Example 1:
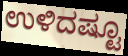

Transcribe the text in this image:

ಉಳಿದಷ್ಟೂ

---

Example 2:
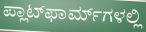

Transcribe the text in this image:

ಪ್ಲಾಟ್‌ಫಾರ್ಮ್‌ಗಳಲ್ಲಿ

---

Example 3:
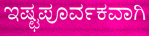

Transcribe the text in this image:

ಇಷ್ಟಪೂರ್ವಕವಾಗಿ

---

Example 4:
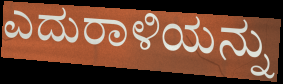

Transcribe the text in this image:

ಎದುರಾಳಿಯನ್ನು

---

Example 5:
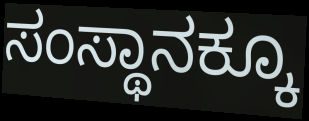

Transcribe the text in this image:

ಸಂಸ್ಥಾನಕ್ಕೂ